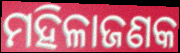
ମହିଳାଜଣକ